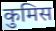
कुमिस